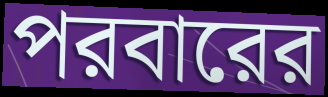
পরবারের